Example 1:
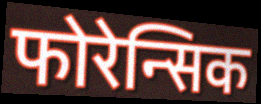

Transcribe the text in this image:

फोरेन्सिक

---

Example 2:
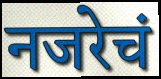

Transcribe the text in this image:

नजरेचं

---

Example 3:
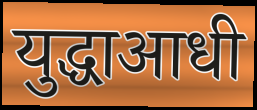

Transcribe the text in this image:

युद्धाआधी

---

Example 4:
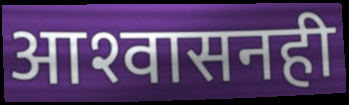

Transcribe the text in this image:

आश्वासनही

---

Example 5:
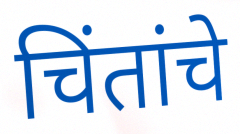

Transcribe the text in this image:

चिंतांचे